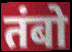
तंबो